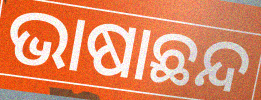
ଭାଷାଛନ୍ଦ